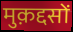
मुक़द्दसों